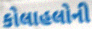
કોલાહલોની